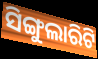
ସିଙ୍ଗୁଲାରିଟି